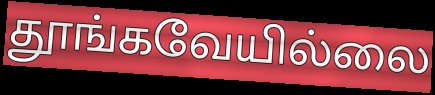
தூங்கவேயில்லை